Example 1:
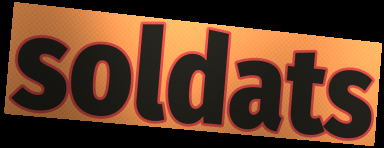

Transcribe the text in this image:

soldats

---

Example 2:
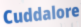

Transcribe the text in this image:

Cuddalore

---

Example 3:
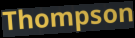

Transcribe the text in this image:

Thompson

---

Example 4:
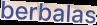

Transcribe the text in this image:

berbalas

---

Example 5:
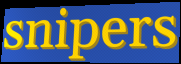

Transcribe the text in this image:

snipers